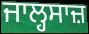
ਜਾਲ੍ਹਸਾਜ਼